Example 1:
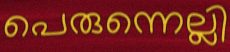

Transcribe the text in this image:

പെരുന്നെല്ലി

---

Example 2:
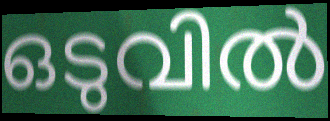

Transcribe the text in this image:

ഒടുവിൽ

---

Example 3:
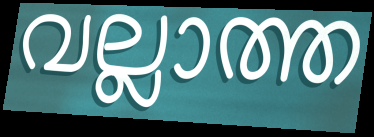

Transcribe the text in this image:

വല്ലാത്ത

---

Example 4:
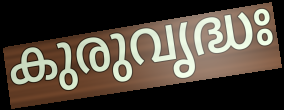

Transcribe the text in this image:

കുരുവൃദ്ധഃ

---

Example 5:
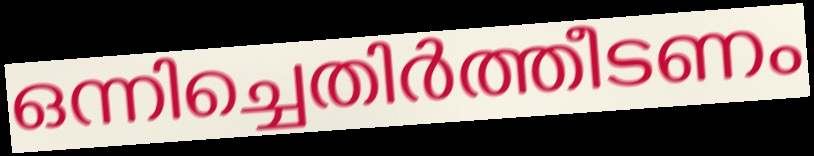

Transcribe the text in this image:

ഒന്നിച്ചെതിർത്തീടണം